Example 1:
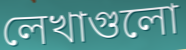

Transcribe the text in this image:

লেখাগুলো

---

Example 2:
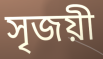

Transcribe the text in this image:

সৃজয়ী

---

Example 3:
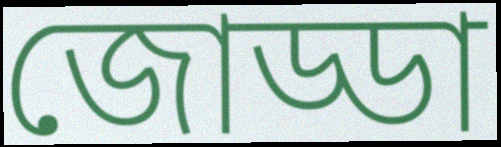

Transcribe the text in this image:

জোড্ডা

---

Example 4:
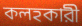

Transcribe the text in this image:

কলহকারী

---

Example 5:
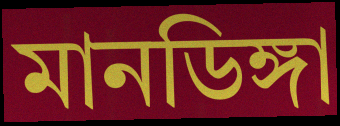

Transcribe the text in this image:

মানডিঙ্গা